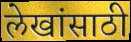
लेखांसाठी